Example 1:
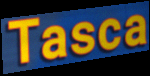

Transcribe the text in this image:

Tasca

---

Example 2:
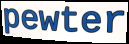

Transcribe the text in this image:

pewter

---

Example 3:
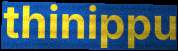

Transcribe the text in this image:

thinippu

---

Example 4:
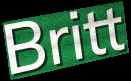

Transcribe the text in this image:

Britt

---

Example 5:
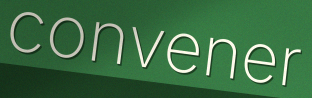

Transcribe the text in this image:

convener